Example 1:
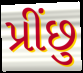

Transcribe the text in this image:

પ્રીંછુ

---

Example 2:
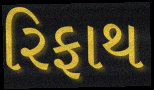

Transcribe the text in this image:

રિફાથ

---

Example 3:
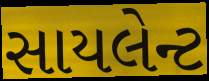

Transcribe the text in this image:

સાયલેન્ટ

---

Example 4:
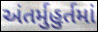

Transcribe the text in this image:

અંતર્મુહુર્તમાં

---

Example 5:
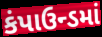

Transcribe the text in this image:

કંપાઉન્ડમાં